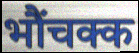
भौंचक्क